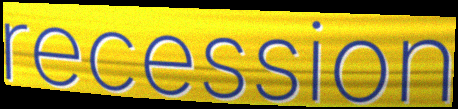
recession